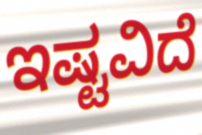
ಇಷ್ಟವಿದೆ